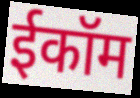
ईकॉम